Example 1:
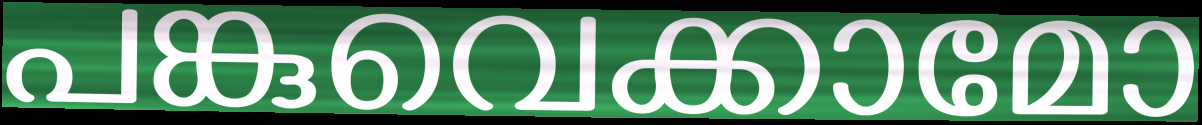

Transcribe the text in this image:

പങ്കുവെക്കാമോ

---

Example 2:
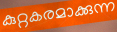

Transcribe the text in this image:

കുറ്റകരമാക്കുന്ന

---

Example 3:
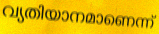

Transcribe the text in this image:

വ്യതിയാനമാണെന്ന്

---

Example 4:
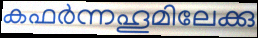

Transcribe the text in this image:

കഫർന്നഹൂമിലേക്കു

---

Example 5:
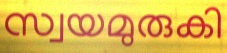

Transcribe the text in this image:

സ്വയമുരുകി